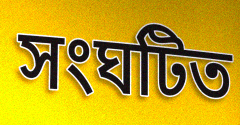
সংঘটিত